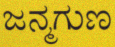
ಜನ್ಮಗುಣ